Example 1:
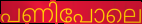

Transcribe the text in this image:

പണിപോലെ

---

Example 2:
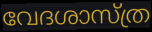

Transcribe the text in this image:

വേദശാസ്ത്ര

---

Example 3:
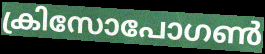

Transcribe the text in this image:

ക്രിസോപോഗൺ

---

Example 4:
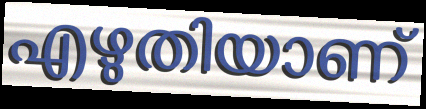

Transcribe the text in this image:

എഴുതിയാണ്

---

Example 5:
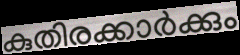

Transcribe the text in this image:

കുതിരക്കാർക്കും